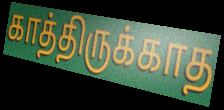
காத்திருக்காத